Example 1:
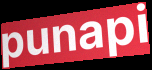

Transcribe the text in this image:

punapi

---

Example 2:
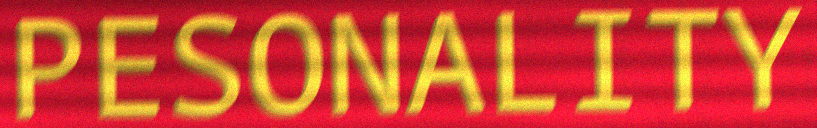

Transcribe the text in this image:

PESONALITY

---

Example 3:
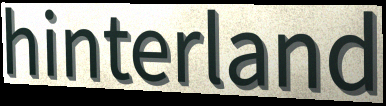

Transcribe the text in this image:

hinterland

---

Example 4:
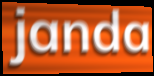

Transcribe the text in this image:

janda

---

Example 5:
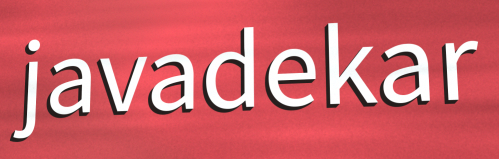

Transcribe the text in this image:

javadekar